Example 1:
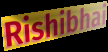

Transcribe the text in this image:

Rishibhai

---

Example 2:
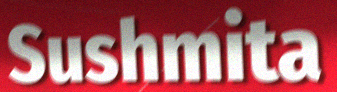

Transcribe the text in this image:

Sushmita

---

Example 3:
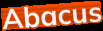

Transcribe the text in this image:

Abacus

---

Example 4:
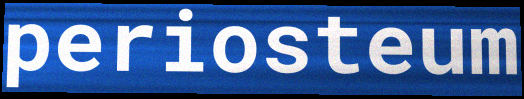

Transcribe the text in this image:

periosteum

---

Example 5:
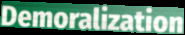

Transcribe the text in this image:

Demoralization